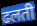
ढलती